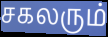
சகலரும்